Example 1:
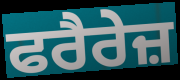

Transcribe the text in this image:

ਫਰੈਰੇਜ਼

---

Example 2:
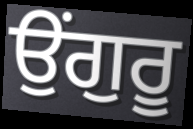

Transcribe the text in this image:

ਉਂਗੁਰੂ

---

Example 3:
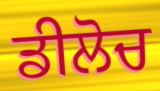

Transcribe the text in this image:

ਡੀਲੋਚ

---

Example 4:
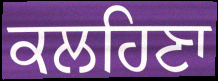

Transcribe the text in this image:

ਕਲਹਿਣਾ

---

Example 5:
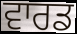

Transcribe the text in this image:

ਵਾਰਡ